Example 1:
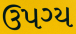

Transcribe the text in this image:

ઉપગ્ય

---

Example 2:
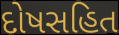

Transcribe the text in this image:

દોષસહિત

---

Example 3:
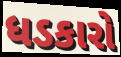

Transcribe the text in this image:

ધડકારો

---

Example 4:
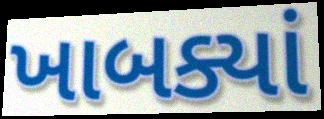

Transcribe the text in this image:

ખાબક્યાં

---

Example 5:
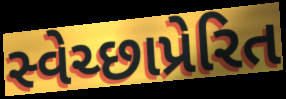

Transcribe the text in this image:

સ્વેચ્છાપ્રેરિત